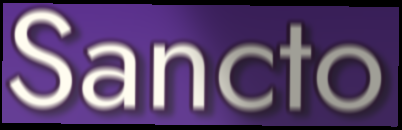
Sancto